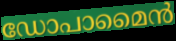
ഡോപാമൈൻ